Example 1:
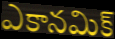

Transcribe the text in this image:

ఎకానమిక్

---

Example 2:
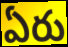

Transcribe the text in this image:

ఏరు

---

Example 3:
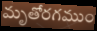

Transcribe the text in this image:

మృతోరగముం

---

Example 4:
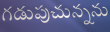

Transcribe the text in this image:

గడుపుచున్నను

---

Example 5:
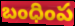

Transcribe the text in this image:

బంధింప